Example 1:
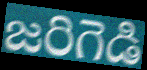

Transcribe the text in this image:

జరిగెడి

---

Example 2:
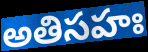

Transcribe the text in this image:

అతిసహః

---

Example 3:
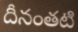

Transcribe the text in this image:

దీనంతటి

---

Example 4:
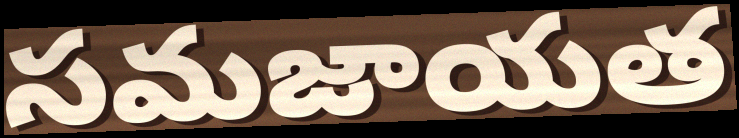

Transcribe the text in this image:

సమజాయత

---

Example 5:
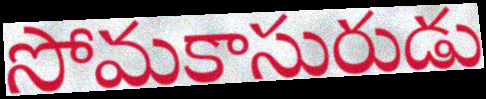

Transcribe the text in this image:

సోమకాసురుడు